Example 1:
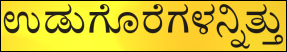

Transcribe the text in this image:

ಉಡುಗೊರೆಗಳನ್ನಿತ್ತು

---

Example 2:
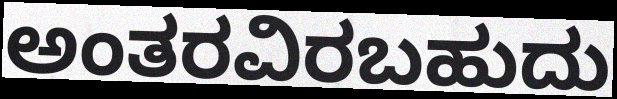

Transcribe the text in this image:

ಅಂತರವಿರಬಹುದು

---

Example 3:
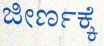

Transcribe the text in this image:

ಜೀರ್ಣಕ್ಕೆ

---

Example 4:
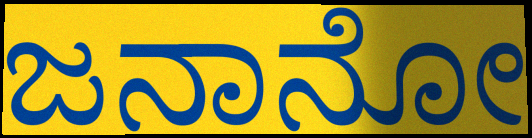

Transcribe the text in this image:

ಜನಾನೋ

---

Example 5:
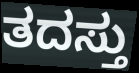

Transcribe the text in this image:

ತದಸ್ತು